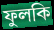
ফুলকি